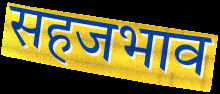
सहजभाव